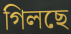
গিলছে